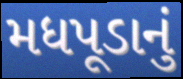
મધપૂડાનું